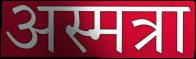
अस्मत्रा